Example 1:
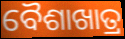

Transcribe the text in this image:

ବୈଶାଖାତ୍ର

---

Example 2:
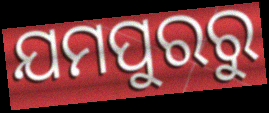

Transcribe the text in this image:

ଯମପୁରରୁ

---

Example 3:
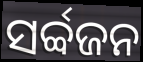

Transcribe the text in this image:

ସର୍ବ୍ବଜନ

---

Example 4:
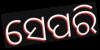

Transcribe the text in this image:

ସେପରି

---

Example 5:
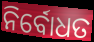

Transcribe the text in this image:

ନିର୍ବୋଧତ